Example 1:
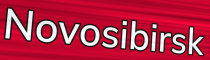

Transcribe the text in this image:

Novosibirsk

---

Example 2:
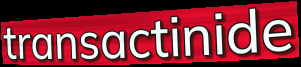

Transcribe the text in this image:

transactinide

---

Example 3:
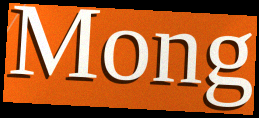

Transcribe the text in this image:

Mong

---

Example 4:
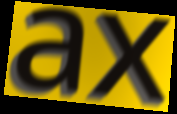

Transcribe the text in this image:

ax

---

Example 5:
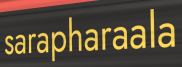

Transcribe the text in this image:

sarapharaala